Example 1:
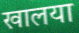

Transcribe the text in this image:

खालया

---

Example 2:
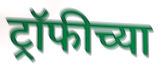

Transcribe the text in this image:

ट्रॉफीच्या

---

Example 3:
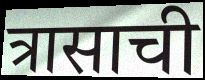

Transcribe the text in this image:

त्रासाची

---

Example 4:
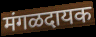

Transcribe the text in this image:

मंगळदायक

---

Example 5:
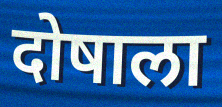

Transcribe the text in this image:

दोषाला